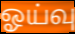
ஓய்வு